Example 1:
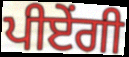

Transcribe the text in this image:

ਪੀਏਂਗੀ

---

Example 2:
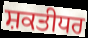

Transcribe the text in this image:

ਸ਼ਕਤੀਧਰ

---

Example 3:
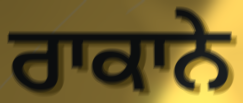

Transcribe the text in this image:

ਰਾਕਾਨੇ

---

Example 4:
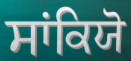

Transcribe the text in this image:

ਸਾਂਕਿਯੋ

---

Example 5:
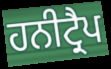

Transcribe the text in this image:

ਹਨੀਟ੍ਰੈਪ